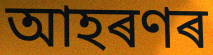
আহৰণৰ